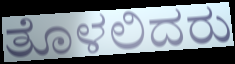
ತೊಳಲಿದರು